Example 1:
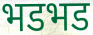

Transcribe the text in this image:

भडभड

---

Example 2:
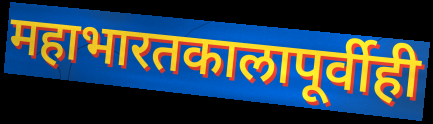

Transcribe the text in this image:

महाभारतकालापूर्वीही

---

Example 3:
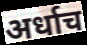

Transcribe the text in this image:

अर्धाच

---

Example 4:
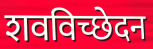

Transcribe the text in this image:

शवविच्छेदन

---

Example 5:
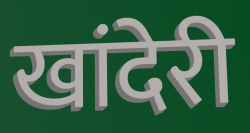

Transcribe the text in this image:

खांदेरी